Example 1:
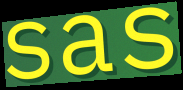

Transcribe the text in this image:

sas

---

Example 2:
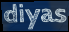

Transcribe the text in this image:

diyas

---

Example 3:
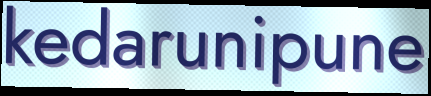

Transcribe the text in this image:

kedarunipune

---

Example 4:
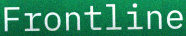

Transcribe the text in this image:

Frontline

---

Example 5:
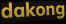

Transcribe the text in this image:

dakong